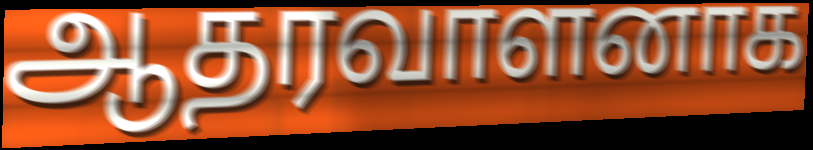
ஆதரவாளனாக